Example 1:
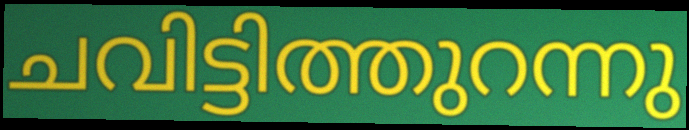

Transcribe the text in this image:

ചവിട്ടിത്തുറന്നു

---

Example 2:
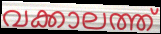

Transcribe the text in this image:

വക്കാലത്ത്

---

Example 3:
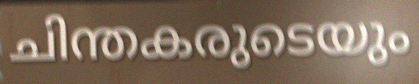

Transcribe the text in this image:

ചിന്തകരുടെയും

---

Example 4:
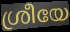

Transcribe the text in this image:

ശ്രീയേ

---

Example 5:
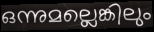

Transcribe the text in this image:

ഒന്നുമല്ലെങ്കിലും